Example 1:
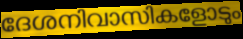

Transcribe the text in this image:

ദേശനിവാസികളോടും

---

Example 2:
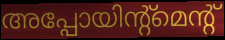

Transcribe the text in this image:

അപ്പോയിന്റ്മെന്റ്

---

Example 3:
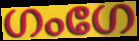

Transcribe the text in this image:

ഗംഗേ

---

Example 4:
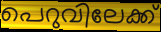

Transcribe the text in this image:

പെറുവിലേക്ക്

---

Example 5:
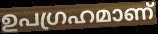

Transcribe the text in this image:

ഉപഗ്രഹമാണ്